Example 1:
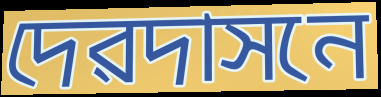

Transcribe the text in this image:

দেৱদাসনে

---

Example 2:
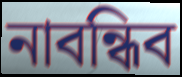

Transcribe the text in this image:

নাবন্ধিব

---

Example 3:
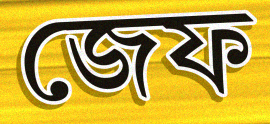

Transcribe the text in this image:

জেফ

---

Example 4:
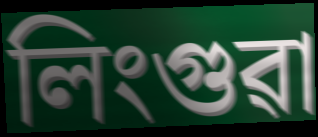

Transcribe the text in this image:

লিংগুৱা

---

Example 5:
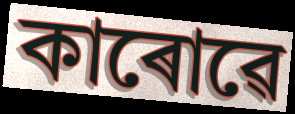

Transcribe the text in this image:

কাৰোৱে